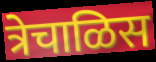
त्रेचाळिस